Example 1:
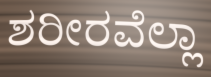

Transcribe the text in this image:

ಶರೀರವೆಲ್ಲಾ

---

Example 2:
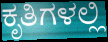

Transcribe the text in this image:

ಕೃತಿಗಳಲ್ಲಿ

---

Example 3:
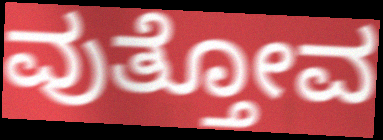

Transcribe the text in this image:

ವುತ್ತೋವ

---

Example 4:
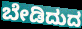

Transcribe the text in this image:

ಬೇಡಿದುದ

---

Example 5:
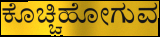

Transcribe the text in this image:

ಕೊಚ್ಚಿಹೋಗುವ